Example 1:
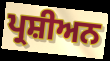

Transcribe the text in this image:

ਪ੍ਰਸ਼ੀਅਨ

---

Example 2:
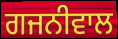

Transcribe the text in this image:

ਗਜਨੀਵਾਲ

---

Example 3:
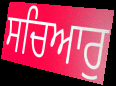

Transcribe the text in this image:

ਸਚਿਆਰੁ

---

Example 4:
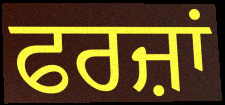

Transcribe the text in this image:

ਫਰਜ਼ਾਂ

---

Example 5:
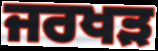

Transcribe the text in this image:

ਜਰਖੜ